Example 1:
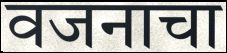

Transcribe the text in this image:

वजनाचा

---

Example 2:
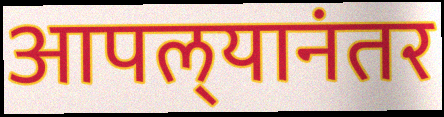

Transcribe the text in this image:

आपल्यानंतर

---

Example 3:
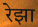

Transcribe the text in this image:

रेझा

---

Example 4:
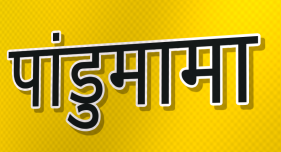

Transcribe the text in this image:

पांडुमामा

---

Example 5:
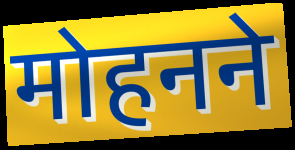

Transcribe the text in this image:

मोहनने